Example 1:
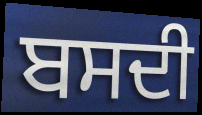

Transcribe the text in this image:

ਬਸਦੀ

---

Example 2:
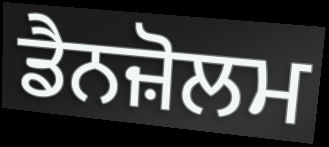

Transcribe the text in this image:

ਡੈਨਜ਼ੋਲਮ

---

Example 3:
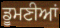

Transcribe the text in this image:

ਡੂਮਣੀਆਂ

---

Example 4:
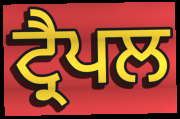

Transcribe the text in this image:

ਟ੍ਰੈਪਲ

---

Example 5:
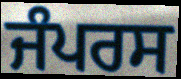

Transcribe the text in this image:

ਜੰਪਰਸ